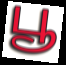
பூ